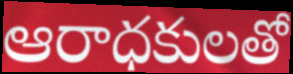
ఆరాధకులతో